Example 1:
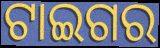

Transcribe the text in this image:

ଟାଇଗର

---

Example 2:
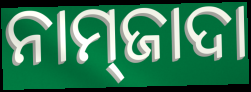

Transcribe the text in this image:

ନାମ୍‌ଜାଦା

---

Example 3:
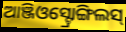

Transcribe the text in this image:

ଆଞ୍ଜିଓସ୍ଟ୍ରୋଙ୍ଗିଲସ୍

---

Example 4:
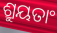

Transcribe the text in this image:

ଶ୍ରୁୟତାଂ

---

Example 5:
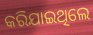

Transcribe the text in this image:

କରିଯାଇଥିଲେ